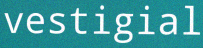
vestigial